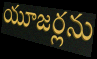
యూజర్లను